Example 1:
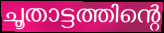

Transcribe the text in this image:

ചൂതാട്ടത്തിന്റെ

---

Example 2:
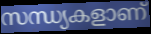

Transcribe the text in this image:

സന്ധ്യകളാണ്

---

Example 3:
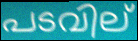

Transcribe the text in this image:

പടവില്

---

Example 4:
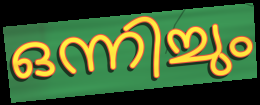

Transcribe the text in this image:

ഒന്നിച്ചും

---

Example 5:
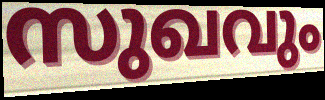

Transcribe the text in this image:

സുഖവും